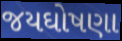
જયઘોષણા